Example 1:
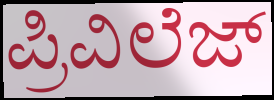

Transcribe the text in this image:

ಪ್ರಿವಿಲೆಜ್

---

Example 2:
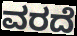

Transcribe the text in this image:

ವರದೆ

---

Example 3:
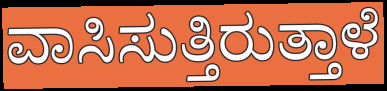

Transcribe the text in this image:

ವಾಸಿಸುತ್ತಿರುತ್ತಾಳೆ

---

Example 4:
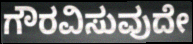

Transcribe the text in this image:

ಗೌರವಿಸುವುದೇ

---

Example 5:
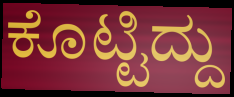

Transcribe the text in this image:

ಕೊಟ್ಟಿದ್ದು